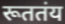
रूततंय